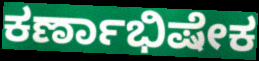
ಕರ್ಣಾಭಿಷೇಕ